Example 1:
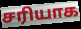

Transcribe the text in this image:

சரியாக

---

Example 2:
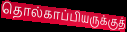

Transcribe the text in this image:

தொல்காப்பியருக்குத்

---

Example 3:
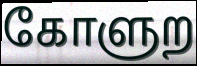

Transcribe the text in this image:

கோளுற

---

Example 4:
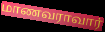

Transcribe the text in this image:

மாணவராவார்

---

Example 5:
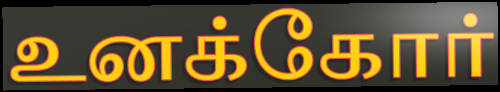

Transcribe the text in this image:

உனக்கோர்